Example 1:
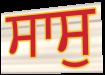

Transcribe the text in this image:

ਸਾਸੁ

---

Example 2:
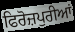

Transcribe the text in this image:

ਫਿਰੋਜ਼ਪੁਰੀਆਂ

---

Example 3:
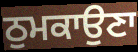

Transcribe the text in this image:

ਠੁਮਕਾਉਣਾ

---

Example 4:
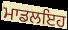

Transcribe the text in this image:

ਮਾਡਲਇਹ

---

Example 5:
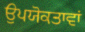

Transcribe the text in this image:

ਉਪਯੋਕਤਾਵਾਂ